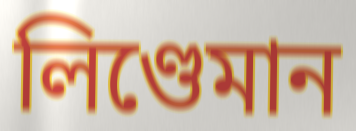
লিণ্ডেমান